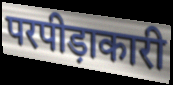
परपीड़ाकारी